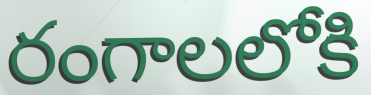
రంగాలలోకి